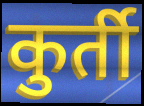
कुर्ती